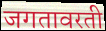
जगतावरती